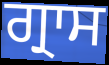
ਗ੍ਰਾਸ